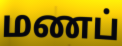
மணப்